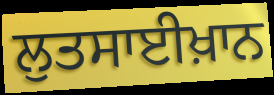
ਲੁਤਸਾਈਖ਼ਾਨ